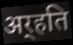
अर्हति